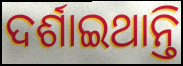
ଦର୍ଶାଇଥାନ୍ତି